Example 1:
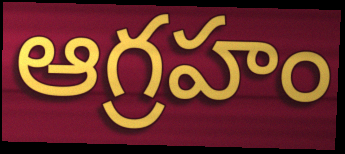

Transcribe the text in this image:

ఆగ్రహం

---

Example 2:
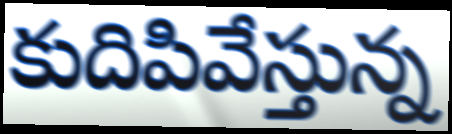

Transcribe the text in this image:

కుదిపివేస్తున్న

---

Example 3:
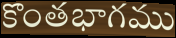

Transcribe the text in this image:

కొంతభాగము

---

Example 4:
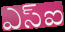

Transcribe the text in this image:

ఎస్ఐ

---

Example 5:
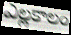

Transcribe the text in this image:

ఎల్లకాలం